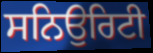
ਸਨਿਉਰਿਟੀ